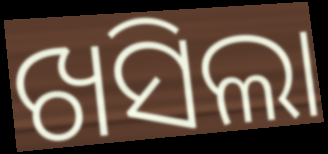
ଖସିଲା